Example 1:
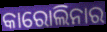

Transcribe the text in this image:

କାରୋଲିନାର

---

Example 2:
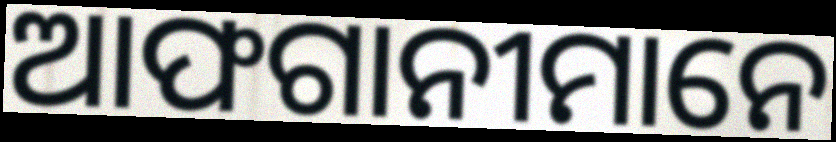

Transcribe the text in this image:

ଆଫଗାନୀମାନେ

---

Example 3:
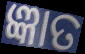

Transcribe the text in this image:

ଜ୍ଞାତ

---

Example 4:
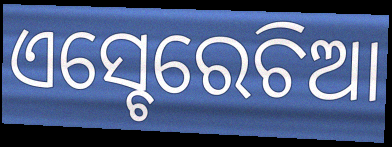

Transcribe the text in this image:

ଏସ୍ଚେରେଚିଆ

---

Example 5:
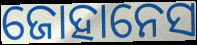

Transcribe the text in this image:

ଜୋହାନେସ